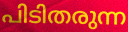
പിടിതരുന്ന